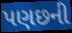
પણછની